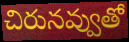
చిరునవ్వుతో